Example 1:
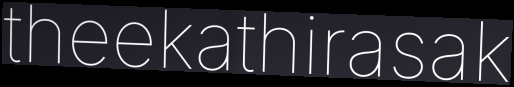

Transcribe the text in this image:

theekathirasak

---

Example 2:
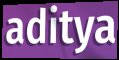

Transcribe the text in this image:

aditya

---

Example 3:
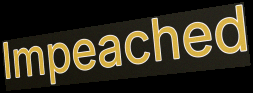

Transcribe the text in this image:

Impeached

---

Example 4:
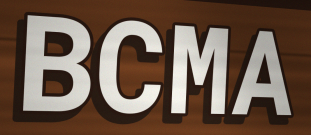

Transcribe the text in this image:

BCMA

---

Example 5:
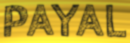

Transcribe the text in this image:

PAYAL